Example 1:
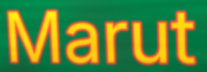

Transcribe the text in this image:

Marut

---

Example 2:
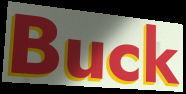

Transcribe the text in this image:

Buck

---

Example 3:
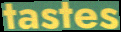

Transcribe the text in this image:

tastes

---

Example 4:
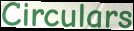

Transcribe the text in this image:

Circulars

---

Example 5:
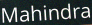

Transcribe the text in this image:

Mahindra